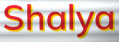
Shalya